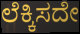
ಲೆಕ್ಕಿಸದೇ